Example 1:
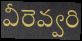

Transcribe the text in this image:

వీరెవ్వరి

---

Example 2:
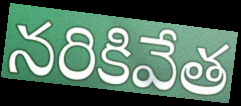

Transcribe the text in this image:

నరికివేత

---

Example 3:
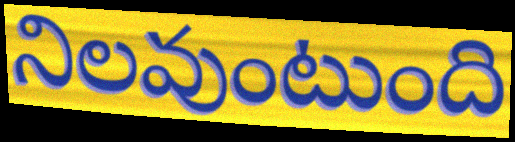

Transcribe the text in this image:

నిలవుంటుంది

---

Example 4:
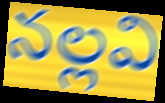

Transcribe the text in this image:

నల్లవి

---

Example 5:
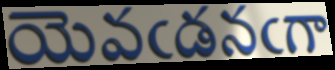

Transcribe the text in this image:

యెవఁడనఁగా